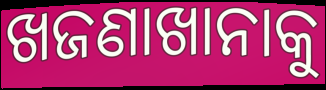
ଖଜଣାଖାନାକୁ